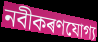
নবীকৰণযোগ্য